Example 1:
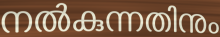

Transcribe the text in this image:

നൽകുന്നതിനും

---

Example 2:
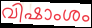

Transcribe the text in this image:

വിഷാംശം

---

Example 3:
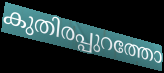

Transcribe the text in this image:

കുതിരപ്പുറത്തോ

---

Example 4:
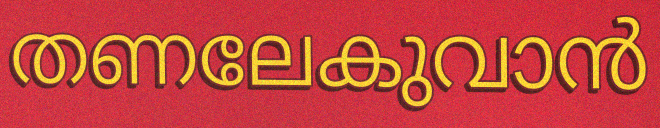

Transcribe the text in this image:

തണലേകുവാൻ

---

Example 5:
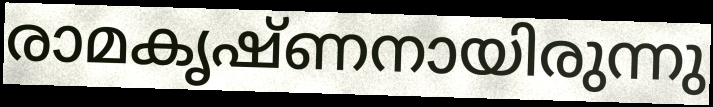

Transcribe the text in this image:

രാമകൃഷ്ണനായിരുന്നു